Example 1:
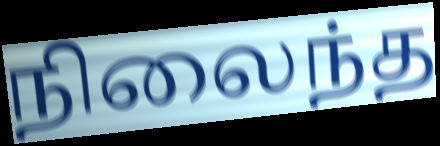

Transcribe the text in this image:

நிலைந்த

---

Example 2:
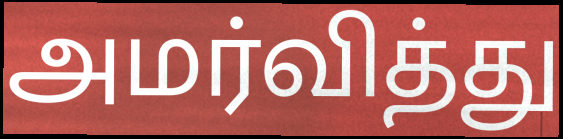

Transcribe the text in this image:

அமர்வித்து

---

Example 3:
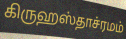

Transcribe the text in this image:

கிருஹஸ்தாச்ரமம்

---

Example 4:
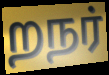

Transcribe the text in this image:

றநர்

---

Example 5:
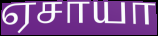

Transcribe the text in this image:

ஏசாயா